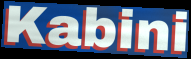
Kabini